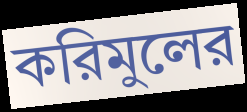
করিমুলের